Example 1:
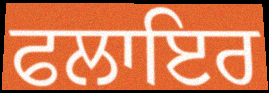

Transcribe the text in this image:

ਫਲਾਇਰ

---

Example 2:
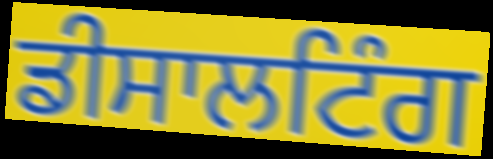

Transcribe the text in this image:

ਡੀਸਾਲਟਿੰਗ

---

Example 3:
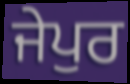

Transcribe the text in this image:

ਜੇਪੁਰ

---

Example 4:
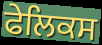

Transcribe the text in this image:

ਫੇਲਿਕਸ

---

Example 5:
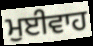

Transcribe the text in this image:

ਮੁਈਵਾਹ